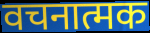
वचनात्मक